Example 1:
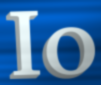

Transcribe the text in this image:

Io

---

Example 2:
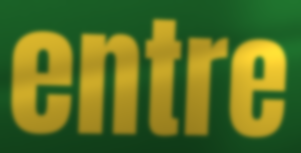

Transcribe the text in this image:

entre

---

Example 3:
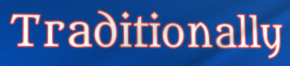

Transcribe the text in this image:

Traditionally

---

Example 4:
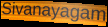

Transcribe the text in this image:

Sivanayagam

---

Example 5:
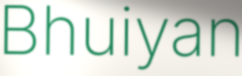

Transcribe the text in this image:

Bhuiyan